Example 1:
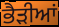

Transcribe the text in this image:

ਭੈੜੀਆਂ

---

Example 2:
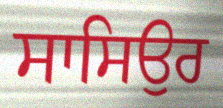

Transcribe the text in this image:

ਸਾਸਿਉਰ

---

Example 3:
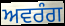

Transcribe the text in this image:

ਅਵਰੰਗ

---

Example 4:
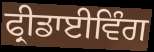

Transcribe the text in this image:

ਫ੍ਰੀਡਾਈਵਿੰਗ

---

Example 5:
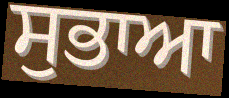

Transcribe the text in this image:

ਸੁਭਾਆ